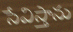
సేవిస్తాను